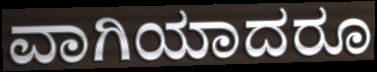
ವಾಗಿಯಾದರೂ